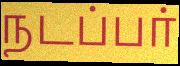
நடப்பர்